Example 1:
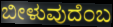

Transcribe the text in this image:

ಬೀಳುವುದೆಂಬ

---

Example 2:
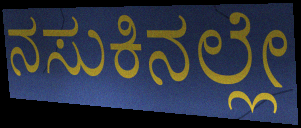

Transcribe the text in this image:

ನಸುಕಿನಲ್ಲೇ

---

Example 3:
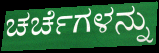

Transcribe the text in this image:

ಚರ್ಚೆಗಳನ್ನು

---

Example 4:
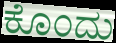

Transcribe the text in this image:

ಕೊಂದು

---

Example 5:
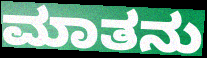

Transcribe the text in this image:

ಮಾತನು